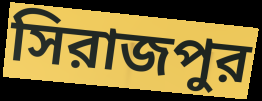
সিরাজপুর